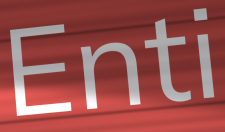
Enti